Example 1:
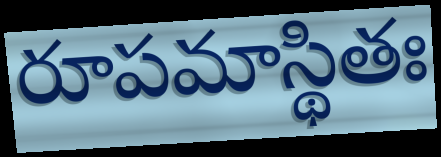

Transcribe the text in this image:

రూపమాస్థితః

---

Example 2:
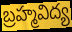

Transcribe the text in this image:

బ్రహ్మవిద్య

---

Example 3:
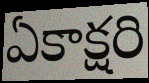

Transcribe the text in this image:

ఏకాక్షరి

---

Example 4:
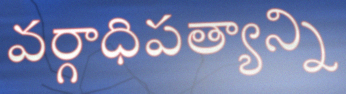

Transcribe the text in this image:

వర్గాధిపత్యాన్ని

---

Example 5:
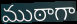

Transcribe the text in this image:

ముఠాగా